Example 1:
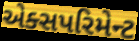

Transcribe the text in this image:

એક્સપરિમેન્ટ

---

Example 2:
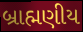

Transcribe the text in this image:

બ્રાહ્મણીય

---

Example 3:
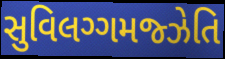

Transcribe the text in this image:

સુવિલગ્ગમજ્ઝેતિ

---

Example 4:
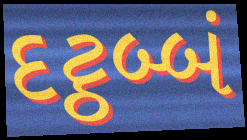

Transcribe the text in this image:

દટ્ઠબ્બં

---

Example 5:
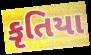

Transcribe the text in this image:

કૃતિયા